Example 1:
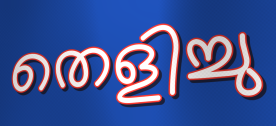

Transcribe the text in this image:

തെളിച്ചു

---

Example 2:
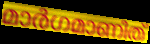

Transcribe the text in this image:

മാർഗമാണിത്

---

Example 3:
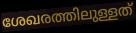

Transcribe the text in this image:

ശേഖരത്തിലുള്ളത്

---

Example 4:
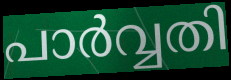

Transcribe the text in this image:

പാർവ്വതി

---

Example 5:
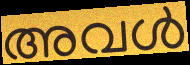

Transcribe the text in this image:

അവൾ